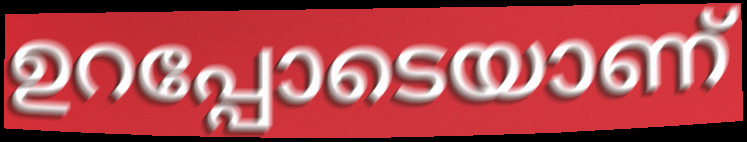
ഉറപ്പോടെയാണ്